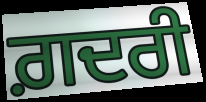
ਗ਼ਦਰੀ